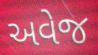
અવેજ